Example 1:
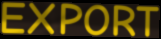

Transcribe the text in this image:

EXPORT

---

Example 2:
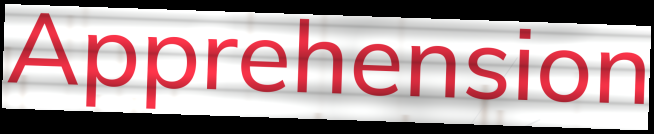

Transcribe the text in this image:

Apprehension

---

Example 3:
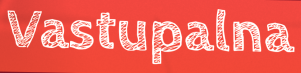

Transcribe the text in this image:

Vastupalna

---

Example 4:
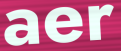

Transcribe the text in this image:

aer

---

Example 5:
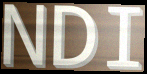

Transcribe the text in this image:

NDI